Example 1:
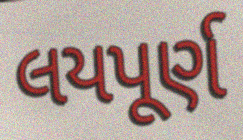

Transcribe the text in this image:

લયપૂર્ણ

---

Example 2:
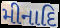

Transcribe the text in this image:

મીનાદિ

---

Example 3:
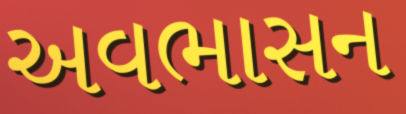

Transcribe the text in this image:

અવભાસન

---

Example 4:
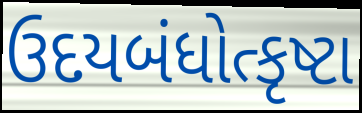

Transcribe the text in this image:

ઉદયબંધોત્કૃષ્ટા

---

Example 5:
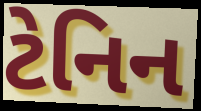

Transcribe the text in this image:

ટેનિન